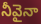
నీవైనా